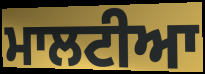
ਮਾਲਟੀਆ